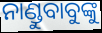
ନାଣ୍ଡୁବାବୁଙ୍କୁ